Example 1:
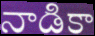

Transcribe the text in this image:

నాడికా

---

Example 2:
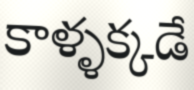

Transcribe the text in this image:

కాళ్ళక్కడే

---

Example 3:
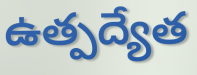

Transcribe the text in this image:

ఉత్పద్యేత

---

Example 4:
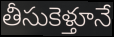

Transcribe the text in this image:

తీసుకెళ్తూనే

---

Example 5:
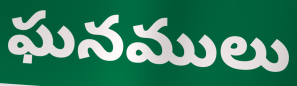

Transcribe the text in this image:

ఘనములు